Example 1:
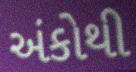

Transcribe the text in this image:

અંકોથી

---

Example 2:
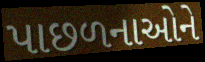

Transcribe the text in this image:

પાછળનાઓને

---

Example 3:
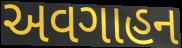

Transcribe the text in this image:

અવગાહન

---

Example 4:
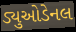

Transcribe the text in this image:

ડ્યુઓડેનલ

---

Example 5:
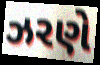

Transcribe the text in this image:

ઝરણે